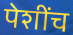
पेशींच